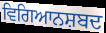
ਵਿਗਿਆਨਸ਼ਬਦ